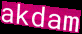
akdam